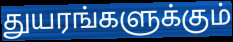
துயரங்களுக்கும்